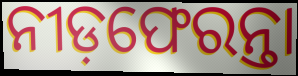
ନୀଡ଼ଫେରନ୍ତା